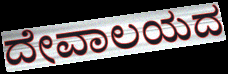
ದೇವಾಲಯದ